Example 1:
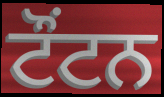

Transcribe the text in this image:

ਟੌਂਟਨ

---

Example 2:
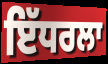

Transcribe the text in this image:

ਇੱਧਰਲਾ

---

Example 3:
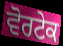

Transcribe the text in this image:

ਵੋਰਟੇਕ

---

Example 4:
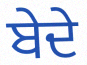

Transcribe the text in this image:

ਬੇਦੇ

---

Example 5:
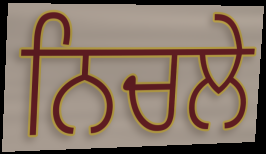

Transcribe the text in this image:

ਨਿਚਲੇ